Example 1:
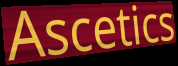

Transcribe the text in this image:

Ascetics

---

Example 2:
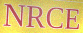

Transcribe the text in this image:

NRCE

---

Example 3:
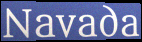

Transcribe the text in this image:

Navada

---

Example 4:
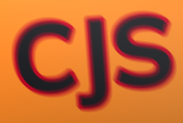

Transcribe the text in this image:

CJS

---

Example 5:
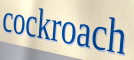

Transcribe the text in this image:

cockroach